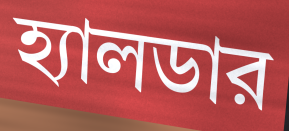
হ্যালডার